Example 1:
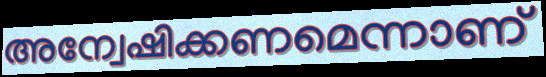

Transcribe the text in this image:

അന്വേഷിക്കണമെന്നാണ്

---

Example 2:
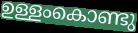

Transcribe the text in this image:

ഉള്ളംകൊണ്ടു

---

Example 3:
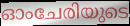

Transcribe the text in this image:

ഓംചേരിയുടെ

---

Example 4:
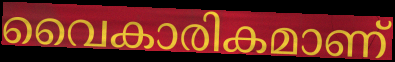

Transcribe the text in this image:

വൈകാരികമാണ്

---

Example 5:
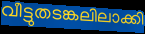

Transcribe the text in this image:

വീട്ടുതടങ്കലിലാക്കി